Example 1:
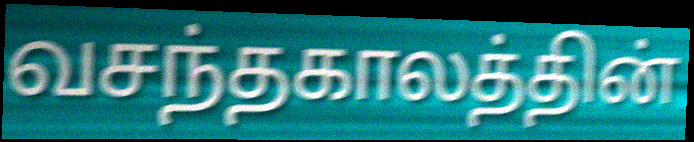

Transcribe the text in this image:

வசந்தகாலத்தின்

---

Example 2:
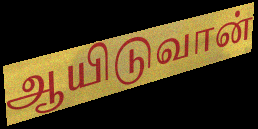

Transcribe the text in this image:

ஆயிடுவான்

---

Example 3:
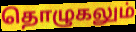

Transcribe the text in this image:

தொழுகலும்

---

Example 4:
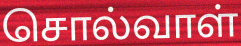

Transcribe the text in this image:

சொல்வாள்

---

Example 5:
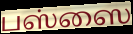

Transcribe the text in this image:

பஸ்ஸை